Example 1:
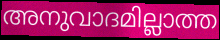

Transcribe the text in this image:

അനുവാദമില്ലാത്ത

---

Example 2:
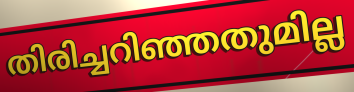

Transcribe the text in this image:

തിരിച്ചറിഞ്ഞതുമില്ല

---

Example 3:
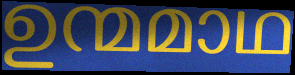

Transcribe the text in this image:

ഉന്മമാഥ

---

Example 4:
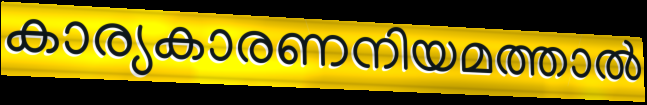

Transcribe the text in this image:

കാര്യകാരണനിയമത്താൽ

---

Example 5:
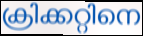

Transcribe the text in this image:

ക്രിക്കറ്റിനെ